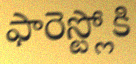
ఫారెస్ట్లోకి